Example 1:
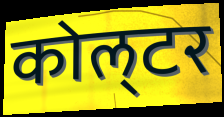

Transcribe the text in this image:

कोल्टर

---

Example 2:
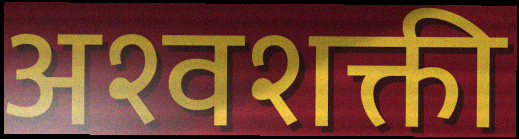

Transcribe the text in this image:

अश्वशक्ती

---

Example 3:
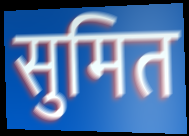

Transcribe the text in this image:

सुमित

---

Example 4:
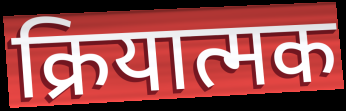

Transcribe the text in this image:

क्रियात्मक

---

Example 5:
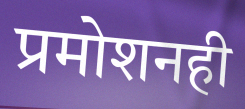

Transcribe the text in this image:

प्रमोशनही